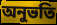
অনুভতি